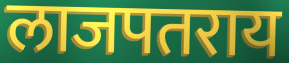
लाजपतराय